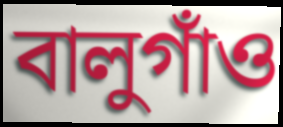
বালুগাঁও